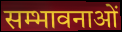
सम्भावनाओं